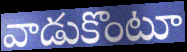
వాడుకొంటూ